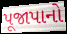
પૂજાપાનો